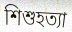
শিশুহত্যা